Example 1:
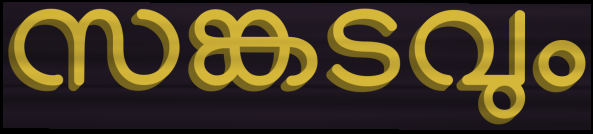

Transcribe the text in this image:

സങ്കടവും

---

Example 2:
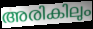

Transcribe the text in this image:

അരികിലും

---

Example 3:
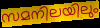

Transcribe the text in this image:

സമനിലയിലും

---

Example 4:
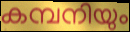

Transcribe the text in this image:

കമ്പനിയും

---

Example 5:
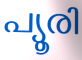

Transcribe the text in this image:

പ്യൂരി